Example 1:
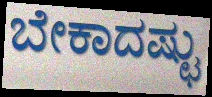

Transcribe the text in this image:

ಬೇಕಾದಷ್ಟು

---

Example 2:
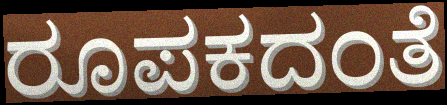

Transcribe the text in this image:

ರೂಪಕದಂತೆ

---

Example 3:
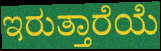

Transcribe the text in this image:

ಇರುತ್ತಾರೆಯೆ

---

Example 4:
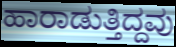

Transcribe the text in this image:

ಹಾರಾಡುತ್ತಿದ್ದವು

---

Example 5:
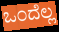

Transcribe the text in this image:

ಒಂದೆಲ್ಲ